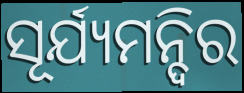
ସୂର୍ଯ୍ୟମନ୍ଦିର